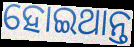
ହୋଇଥାନ୍ତ